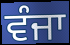
ਵੰਜਾ